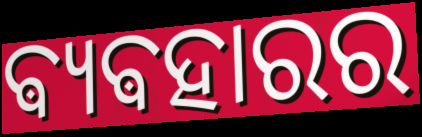
ଵ୍ୟଵହାରର